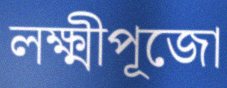
লক্ষ্মীপূজো